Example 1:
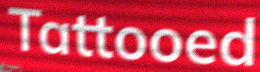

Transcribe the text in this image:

Tattooed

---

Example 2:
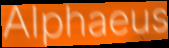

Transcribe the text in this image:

Alphaeus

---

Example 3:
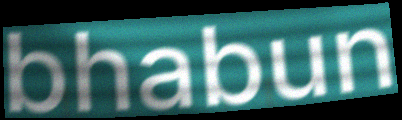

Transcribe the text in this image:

bhabun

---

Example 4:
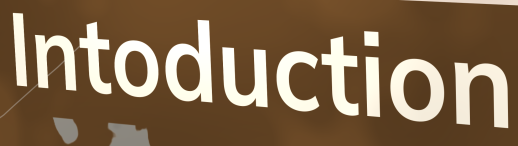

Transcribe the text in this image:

Intoduction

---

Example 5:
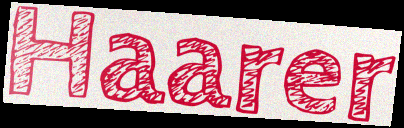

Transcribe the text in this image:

Haarer